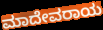
ಮಾದೇವರಾಯ